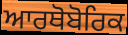
ਆਰਥੋਬੋਰਿਕ